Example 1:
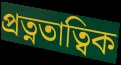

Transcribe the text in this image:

প্রত্নতাত্বিক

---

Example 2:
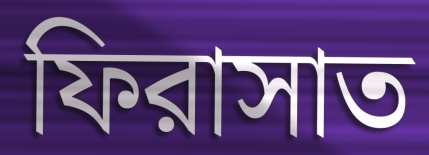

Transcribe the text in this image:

ফিরাসাত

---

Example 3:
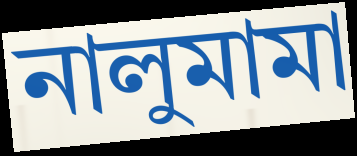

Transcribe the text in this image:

নালুমামা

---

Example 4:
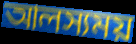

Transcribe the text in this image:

আলস্যময়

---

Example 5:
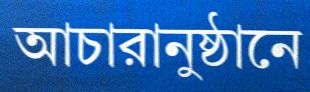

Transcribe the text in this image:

আচারানুষ্ঠানে